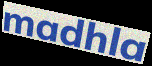
madhla